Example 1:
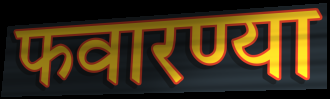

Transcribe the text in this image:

फवारण्या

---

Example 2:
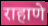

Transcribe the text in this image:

राहाणे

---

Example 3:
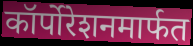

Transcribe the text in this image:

कॉर्पोरेशनमार्फत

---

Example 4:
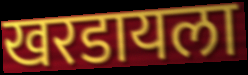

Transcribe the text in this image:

खरडायला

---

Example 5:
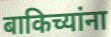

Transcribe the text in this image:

बाकिच्यांना